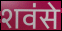
शव॑से